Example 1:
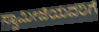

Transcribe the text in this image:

ಸ್ವಾಮೀಜಿಯವರಿಗೆ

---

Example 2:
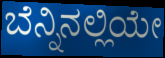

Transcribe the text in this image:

ಬೆನ್ನಿನಲ್ಲಿಯೇ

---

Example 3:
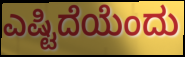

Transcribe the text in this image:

ಎಷ್ಟಿದೆಯೆಂದು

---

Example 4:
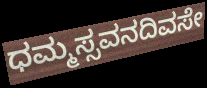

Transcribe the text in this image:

ಧಮ್ಮಸ್ಸವನದಿವಸೇ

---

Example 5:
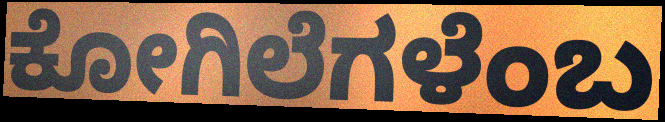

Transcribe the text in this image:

ಕೋಗಿಲೆಗಳೆಂಬ